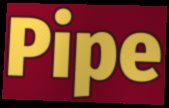
Pipe